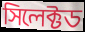
সিলেক্টড